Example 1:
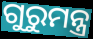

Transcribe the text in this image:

ଗୁରୁମନ୍ତ୍ର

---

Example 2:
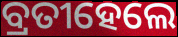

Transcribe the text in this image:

ବ୍ରତୀହେଲେ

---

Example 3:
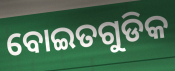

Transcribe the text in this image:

ବୋଇତଗୁଡିକ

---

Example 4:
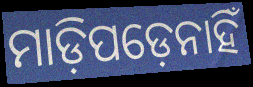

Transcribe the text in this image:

ମାଡ଼ିପଡ଼େନାହିଁ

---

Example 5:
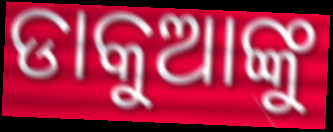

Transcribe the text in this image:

ଡାକୁଆଙ୍କୁ